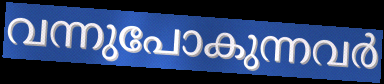
വന്നുപോകുന്നവർ